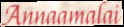
Annaamalai